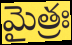
మైత్రః